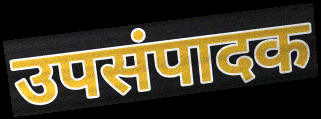
उपसंपादक